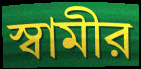
স্বামীর